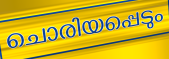
ചൊരിയപ്പെടും